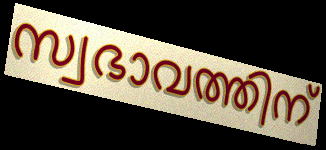
സ്വഭാവത്തിന്